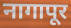
नागापूर